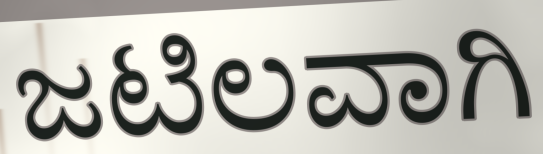
ಜಟಿಲವಾಗಿ